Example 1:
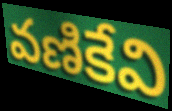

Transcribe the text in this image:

వణికేవి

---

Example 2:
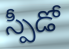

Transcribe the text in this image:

స్పీడో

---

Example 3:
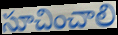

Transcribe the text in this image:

సూచించాలి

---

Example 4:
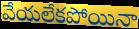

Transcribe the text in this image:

వేయలేకపోయినా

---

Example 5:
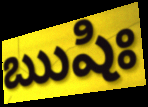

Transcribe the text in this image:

ఋషిః